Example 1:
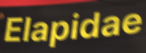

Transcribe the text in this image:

Elapidae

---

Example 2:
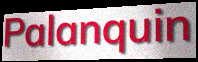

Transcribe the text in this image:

Palanquin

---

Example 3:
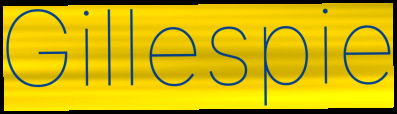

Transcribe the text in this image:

Gillespie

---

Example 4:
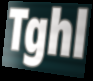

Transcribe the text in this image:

Tghl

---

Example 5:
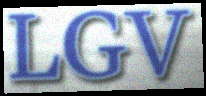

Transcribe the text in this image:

LGV